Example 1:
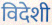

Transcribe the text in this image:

विदेशी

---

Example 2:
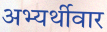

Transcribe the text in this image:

अभ्यर्थीवार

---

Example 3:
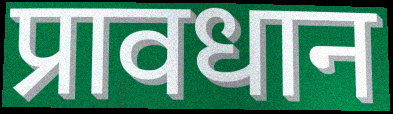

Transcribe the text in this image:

प्रावधान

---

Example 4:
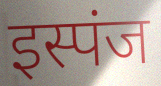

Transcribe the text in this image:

इस्पंज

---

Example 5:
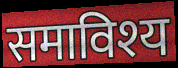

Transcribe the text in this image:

समाविश्य